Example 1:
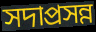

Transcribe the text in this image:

সদাপ্রসন্ন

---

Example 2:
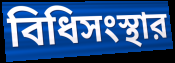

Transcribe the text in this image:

বিধিসংস্থার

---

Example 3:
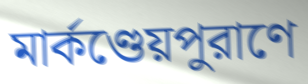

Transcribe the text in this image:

মার্কণ্ডেয়পুরাণে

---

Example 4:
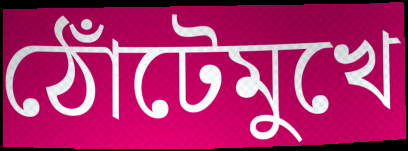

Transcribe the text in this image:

ঠোঁটেমুখে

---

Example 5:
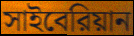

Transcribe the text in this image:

সাইবেরিয়ান